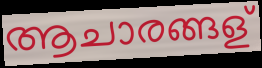
ആചാരങ്ങള്